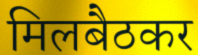
मिलबैठकर